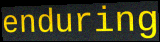
enduring